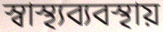
স্বাস্থ্যব্যবস্থায়